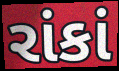
રાંકાં